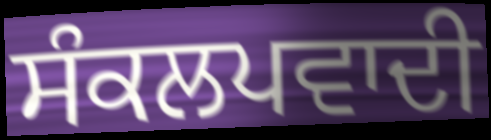
ਸੰਕਲਪਵਾਦੀ